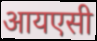
आयएसी